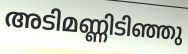
അടിമണ്ണിടിഞ്ഞു